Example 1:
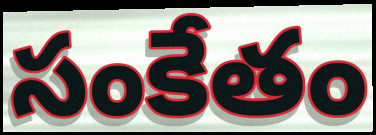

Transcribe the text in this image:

సంకేతం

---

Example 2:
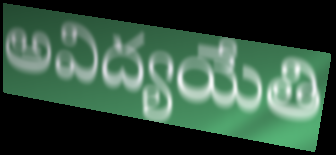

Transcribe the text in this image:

అవిద్యయేతి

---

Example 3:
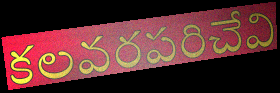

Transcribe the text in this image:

కలవరపరిచేవి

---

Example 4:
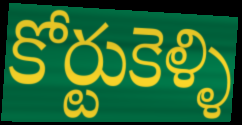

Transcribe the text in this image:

కోర్టుకెళ్ళి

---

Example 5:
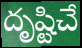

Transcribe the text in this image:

దృష్టిచే